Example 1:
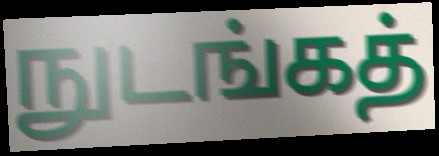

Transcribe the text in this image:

நுடங்கத்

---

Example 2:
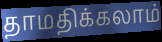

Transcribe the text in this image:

தாமதிக்கலாம்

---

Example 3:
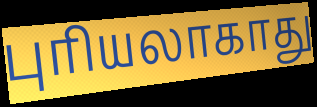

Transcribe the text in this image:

புரியலாகாது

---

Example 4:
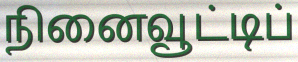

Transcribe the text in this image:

நினைவூட்டிப்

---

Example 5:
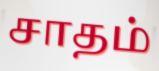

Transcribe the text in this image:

சாதம்